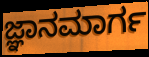
ಜ್ಞಾನಮಾರ್ಗ